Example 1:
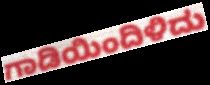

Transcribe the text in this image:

ಗಾಡಿಯಿಂದಿಳಿದು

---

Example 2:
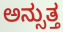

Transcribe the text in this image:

ಅನ್ಸುತ್ತ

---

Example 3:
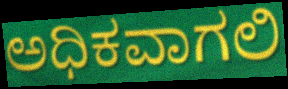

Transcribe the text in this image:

ಅಧಿಕವಾಗಲಿ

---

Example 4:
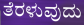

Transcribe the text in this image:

ತೆರಳುವುದು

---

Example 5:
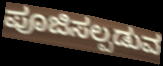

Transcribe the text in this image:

ಪೂಜಿಸಲ್ಪಡುವ